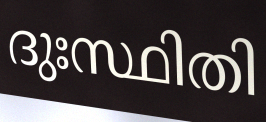
ദുഃസ്ഥിതി